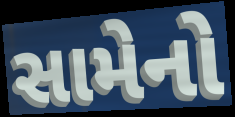
સામેનો